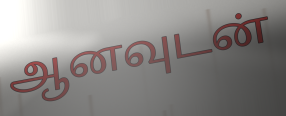
ஆனவுடன்